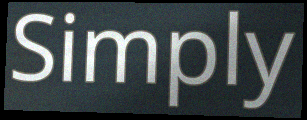
Simply